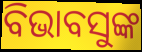
ବିଭାବସୁଙ୍କ